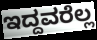
ಇದ್ದವರೆಲ್ಲ